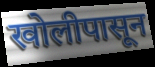
खोलीपासून